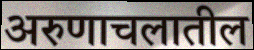
अरुणाचलातील